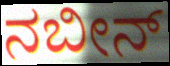
ನಬೀನ್